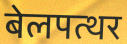
बेलपत्थर